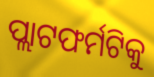
ପ୍ଲାଟଫର୍ମଟିକୁ